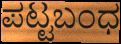
ಪಟ್ಟಬಂಧ